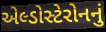
એલ્ડોસ્ટેરોનનું